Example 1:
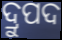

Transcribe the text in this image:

ଦ୍ରୁପଦ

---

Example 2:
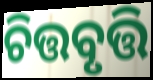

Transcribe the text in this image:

ଚିତ୍ତବୃତ୍ତି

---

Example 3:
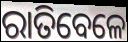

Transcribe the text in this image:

ରାତିବେଳେ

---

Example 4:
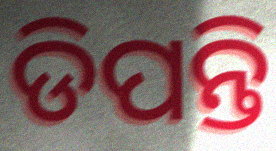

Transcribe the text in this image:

ଡିପନ୍ତି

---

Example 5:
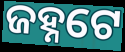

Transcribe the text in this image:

ଜହ୍ନଟେ